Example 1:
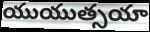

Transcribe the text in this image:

యుయుత్సయా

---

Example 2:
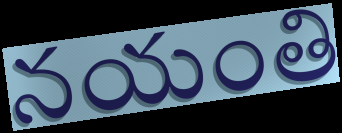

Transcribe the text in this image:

నయంతి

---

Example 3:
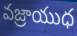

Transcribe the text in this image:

వజ్రాయుధ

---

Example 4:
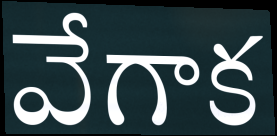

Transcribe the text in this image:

వేగాక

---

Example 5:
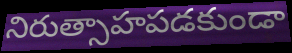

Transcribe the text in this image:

నిరుత్సాహపడకుండా